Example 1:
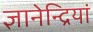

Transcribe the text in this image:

ज्ञानेन्द्रियां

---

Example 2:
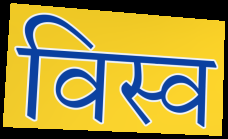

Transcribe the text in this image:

विस्व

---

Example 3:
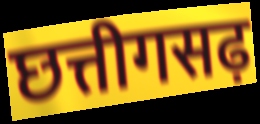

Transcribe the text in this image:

छत्तीगसढ़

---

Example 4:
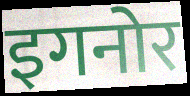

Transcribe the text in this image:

इगनोर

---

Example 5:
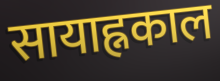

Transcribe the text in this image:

सायाह्नकाल